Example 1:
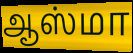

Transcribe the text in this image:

ஆஸ்மா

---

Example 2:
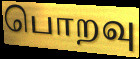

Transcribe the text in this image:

பொறவு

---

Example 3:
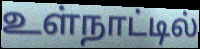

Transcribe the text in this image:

உள்நாட்டில்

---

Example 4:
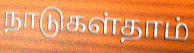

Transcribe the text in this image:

நாடுகள்தாம்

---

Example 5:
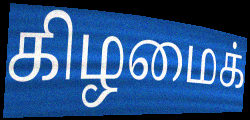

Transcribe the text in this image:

கிழமைக்